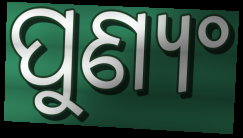
ପୁଣ୍ୟଂ